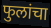
फुलांचा